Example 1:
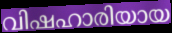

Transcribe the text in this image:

വിഷഹാരിയായ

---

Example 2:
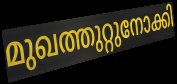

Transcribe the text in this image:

മുഖത്തുറ്റുനോക്കി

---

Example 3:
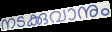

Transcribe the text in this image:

നടക്കുവാനും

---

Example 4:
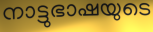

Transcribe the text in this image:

നാട്ടുഭാഷയുടെ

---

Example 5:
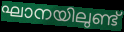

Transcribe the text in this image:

ഘാനയിലുണ്ട്